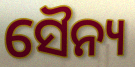
ସୈନ୍ୟ